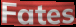
Fates